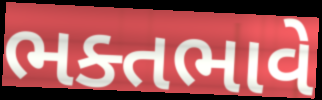
ભક્તભાવે